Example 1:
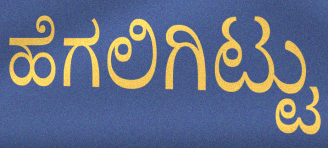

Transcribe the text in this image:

ಹೆಗಲಿಗಿಟ್ಟು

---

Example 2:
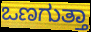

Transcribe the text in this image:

ಒಣಗುತ್ತಾ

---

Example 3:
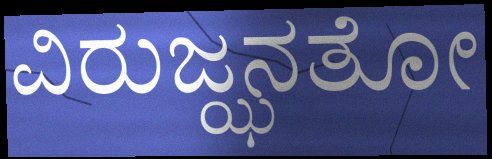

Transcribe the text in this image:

ವಿರುಜ್ಝನತೋ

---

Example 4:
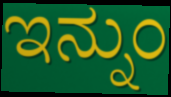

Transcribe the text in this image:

ಇನ್ನುಂ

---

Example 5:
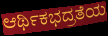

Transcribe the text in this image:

ಆರ್ಥಿಕಭದ್ರತೆಯ